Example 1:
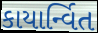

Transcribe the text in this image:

કાયાર્ન્વિત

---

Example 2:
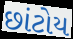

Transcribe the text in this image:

છાંટોય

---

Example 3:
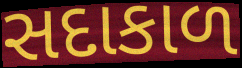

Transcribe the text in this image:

સદાકાળ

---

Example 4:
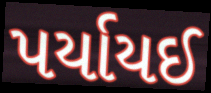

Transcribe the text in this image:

પર્યાયઈ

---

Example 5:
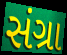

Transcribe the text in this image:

સંગ્રા